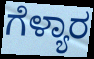
ಗೆಳ್ಯಾರ